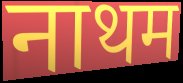
नाथम